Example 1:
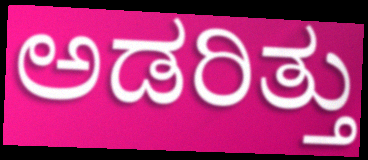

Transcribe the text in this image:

ಅಡರಿತ್ತು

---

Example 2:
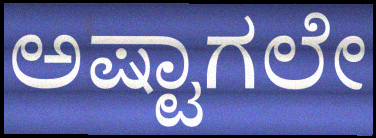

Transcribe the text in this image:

ಅಷ್ಟಾಗಲೇ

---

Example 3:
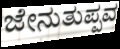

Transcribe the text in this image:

ಜೇನುತುಪ್ಪವ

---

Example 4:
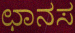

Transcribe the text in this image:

ಛಾನಸ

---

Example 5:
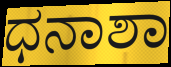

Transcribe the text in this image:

ಧನಾಶಾ